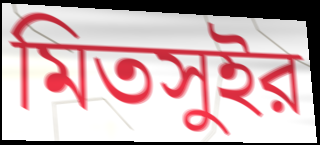
মিতসুইর